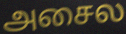
அசைல